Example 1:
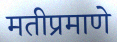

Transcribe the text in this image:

मतीप्रमाणे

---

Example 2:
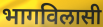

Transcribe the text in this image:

भागविलासी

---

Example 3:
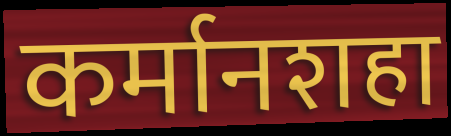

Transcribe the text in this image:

कर्मानशहा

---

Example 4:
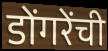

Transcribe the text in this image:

डोंगरेंची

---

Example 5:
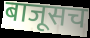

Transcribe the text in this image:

बाजूसच